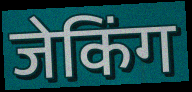
जेकिंग